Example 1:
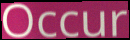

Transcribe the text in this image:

Occur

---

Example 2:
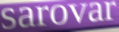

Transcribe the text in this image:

sarovar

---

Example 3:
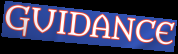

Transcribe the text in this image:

GUIDANCE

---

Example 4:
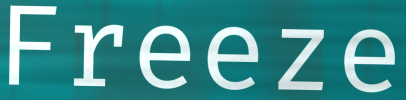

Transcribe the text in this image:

Freeze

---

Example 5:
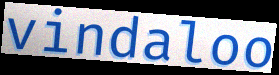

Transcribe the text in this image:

vindaloo